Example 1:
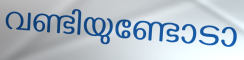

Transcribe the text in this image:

വണ്ടിയുണ്ടോടാ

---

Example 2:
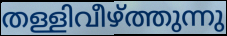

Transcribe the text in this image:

തള്ളിവീഴ്ത്തുന്നു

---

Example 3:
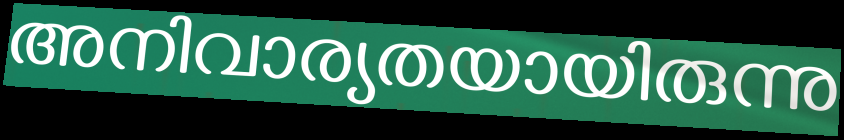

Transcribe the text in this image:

അനിവാര്യതയായിരുന്നു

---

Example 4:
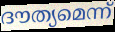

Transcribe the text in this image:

ദൗത്യമെന്ന്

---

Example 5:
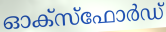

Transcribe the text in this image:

ഓക്സ്ഫോർഡ്